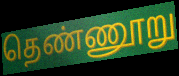
தெண்ணூறு